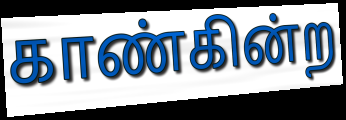
காண்கின்ற